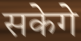
सकेगे